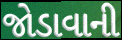
જોડાવાની